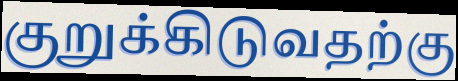
குறுக்கிடுவதற்கு